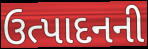
ઉત્પાદનની